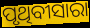
ପୃଥିବୀସାରା